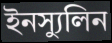
ইনস্যুলিন